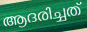
ആദരിച്ചത്